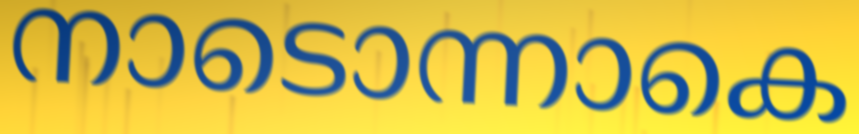
നാടൊന്നാകെ